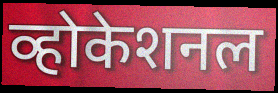
व्होकेशनल